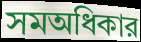
সমঅধিকার